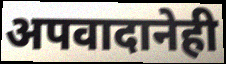
अपवादानेही